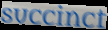
succinct